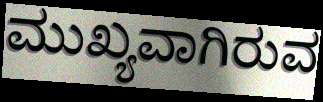
ಮುಖ್ಯವಾಗಿರುವ